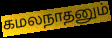
கமலநாதனும்